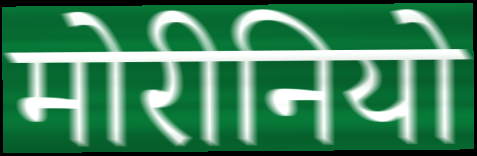
मोरीनियो